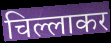
चिल्‍लाकर